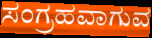
ಸಂಗ್ರಹವಾಗುವ